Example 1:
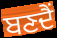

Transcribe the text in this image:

ਬਣਦੈਂ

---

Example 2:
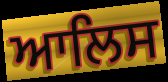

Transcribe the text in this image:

ਆਲਿਸ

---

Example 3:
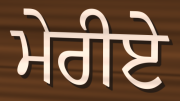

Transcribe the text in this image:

ਮੇਰੀਏ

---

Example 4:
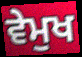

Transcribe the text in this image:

ਵੇਮੁਖ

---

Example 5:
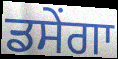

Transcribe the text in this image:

ਡਸੇਂਗਾ